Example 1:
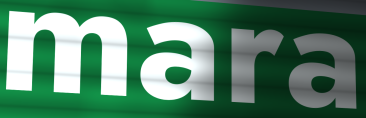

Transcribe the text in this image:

mara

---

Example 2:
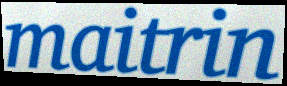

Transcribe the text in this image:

maitrin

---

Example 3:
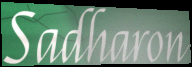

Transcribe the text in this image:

Sadharon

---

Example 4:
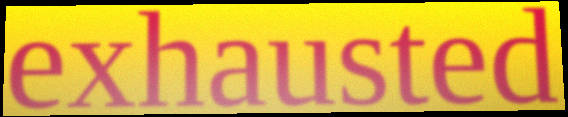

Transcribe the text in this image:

exhausted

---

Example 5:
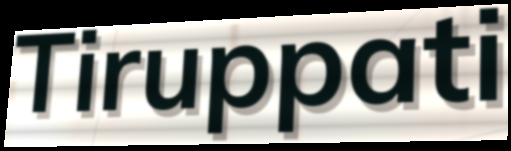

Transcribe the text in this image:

Tiruppati